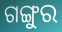
ଗଙ୍ଗୁର